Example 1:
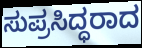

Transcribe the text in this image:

ಸುಪ್ರಸಿದ್ಧರಾದ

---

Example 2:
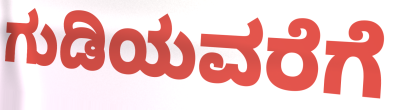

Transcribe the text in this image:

ಗುಡಿಯವರೆಗೆ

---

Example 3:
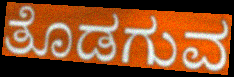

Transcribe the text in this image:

ತೊಡಗುವ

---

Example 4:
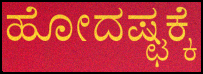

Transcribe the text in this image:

ಹೋದಷ್ಟಕ್ಕೆ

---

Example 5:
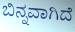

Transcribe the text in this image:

ಬಿನ್ನವಾಗಿದೆ